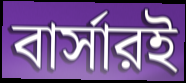
বার্সারই